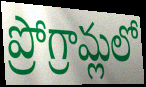
ప్రోగ్రామ్లలో